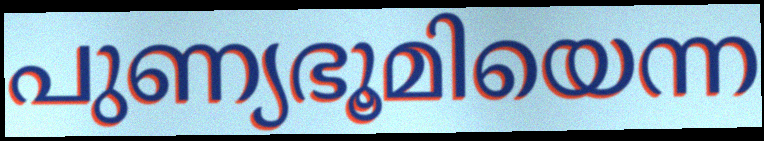
പുണ്യഭൂമിയെന്ന